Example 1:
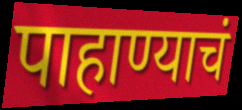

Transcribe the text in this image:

पाहाण्याचं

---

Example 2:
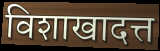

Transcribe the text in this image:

विशाखादत्त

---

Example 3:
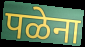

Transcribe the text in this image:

पळेना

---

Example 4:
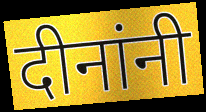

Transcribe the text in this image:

दीनांनी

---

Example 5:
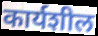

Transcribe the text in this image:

कार्यशील